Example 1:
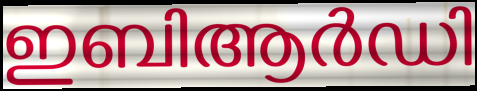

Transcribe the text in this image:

ഇബിആർഡി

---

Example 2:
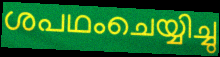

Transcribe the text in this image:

ശപഥംചെയ്യിച്ചു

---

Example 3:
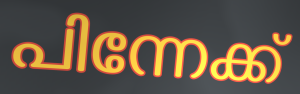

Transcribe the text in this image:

പിന്നേക്ക്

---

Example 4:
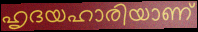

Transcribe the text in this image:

ഹൃദയഹാരിയാണ്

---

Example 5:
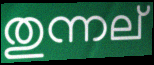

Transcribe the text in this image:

തുന്നല്